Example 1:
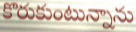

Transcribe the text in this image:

కొరుకుంటున్నాను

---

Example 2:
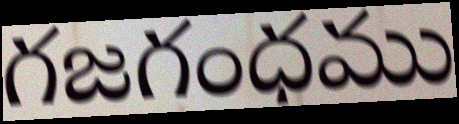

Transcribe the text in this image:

గజగంధము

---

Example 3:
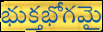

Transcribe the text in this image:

భుక్తభోగమై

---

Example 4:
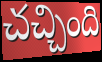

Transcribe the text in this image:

చచ్చింది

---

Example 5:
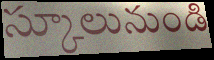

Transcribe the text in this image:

స్కూలునుండి